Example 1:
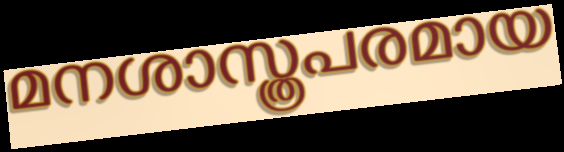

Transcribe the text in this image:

മനശാസ്ത്രപരമായ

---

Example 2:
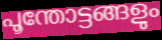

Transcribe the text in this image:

പൂന്തോട്ടങ്ങളും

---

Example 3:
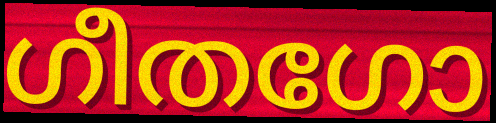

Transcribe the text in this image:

ഗീതഗോ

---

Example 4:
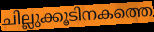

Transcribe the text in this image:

ചില്ലുക്കൂടിനകത്തെ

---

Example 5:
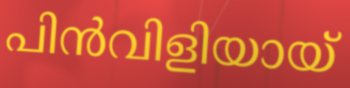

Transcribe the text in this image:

പിൻവിളിയായ്